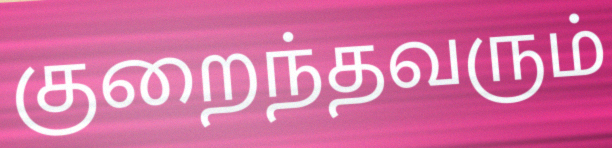
குறைந்தவரும்